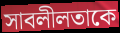
সাবলীলতাকে